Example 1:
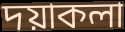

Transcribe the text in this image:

দয়াকলা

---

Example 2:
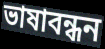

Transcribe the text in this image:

ভাষাবন্ধন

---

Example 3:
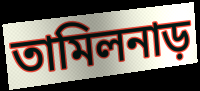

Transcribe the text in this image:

তামিলনাড়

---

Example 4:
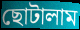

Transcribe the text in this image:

ছোটালাম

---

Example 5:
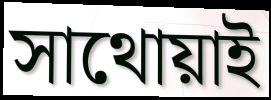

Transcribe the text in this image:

সাথোয়াই